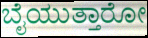
ಬೈಯುತ್ತಾರೋ